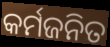
କର୍ମଜନିତ